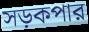
সড়কপার